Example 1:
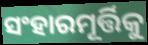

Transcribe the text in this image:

ସଂହାରମୂର୍ତ୍ତିକୁ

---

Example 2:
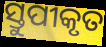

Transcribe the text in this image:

ସ୍ତୁପୀକୃତ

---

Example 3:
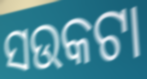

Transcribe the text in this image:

ସଉକଟା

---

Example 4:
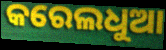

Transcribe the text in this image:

କରେଲଧୁଆ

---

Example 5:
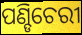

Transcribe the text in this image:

ପଣ୍ଡିଚେରୀ